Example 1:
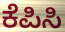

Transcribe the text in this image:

ಕೆಪಿಸಿ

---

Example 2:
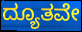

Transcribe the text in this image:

ದ್ಯೂತವೇ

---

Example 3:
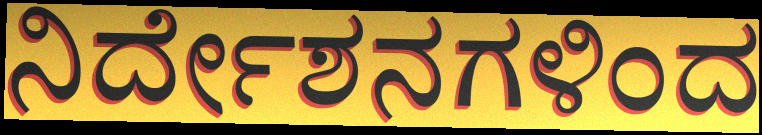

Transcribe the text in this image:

ನಿರ್ದೇಶನಗಳಿಂದ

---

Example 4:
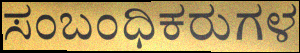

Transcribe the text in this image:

ಸಂಬಂಧಿಕರುಗಳ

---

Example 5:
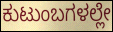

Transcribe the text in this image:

ಕುಟುಂಬಗಳಲ್ಲೇ